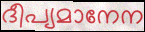
ദീപ്യമാനേന